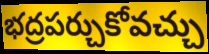
భద్రపర్చుకోవచ్చు